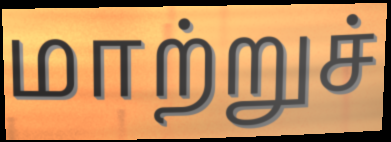
மாற்றுச்